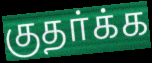
குதர்க்க